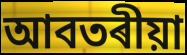
আবতৰীয়া